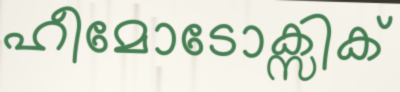
ഹീമോടോക്സിക്